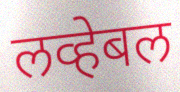
लव्हेबल